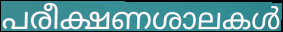
പരീക്ഷണശാലകൾ